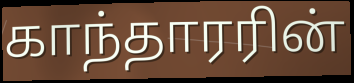
காந்தாரரின்